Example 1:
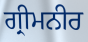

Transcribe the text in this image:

ਗ੍ਰੀਮਨੀਰ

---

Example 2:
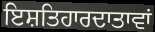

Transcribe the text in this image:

ਇਸ਼ਤਿਹਾਰਦਾਤਾਵਾਂ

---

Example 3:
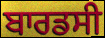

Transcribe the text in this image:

ਬਾਰਡਸੀ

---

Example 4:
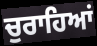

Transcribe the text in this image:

ਚੁਰਾਹਿਆਂ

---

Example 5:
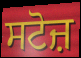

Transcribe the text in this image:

ਸਟੋਜ਼